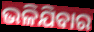
ଭଳିଯିବାର